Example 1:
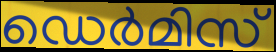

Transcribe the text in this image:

ഡെർമിസ്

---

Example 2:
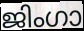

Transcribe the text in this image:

ജിംഗാ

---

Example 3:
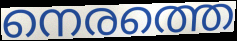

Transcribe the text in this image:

നെരത്തെ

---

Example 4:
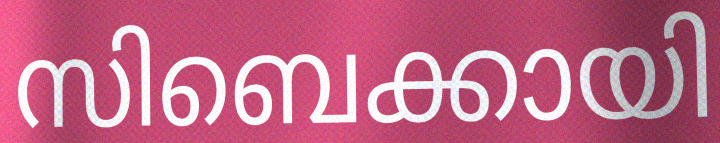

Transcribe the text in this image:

സിബെക്കായി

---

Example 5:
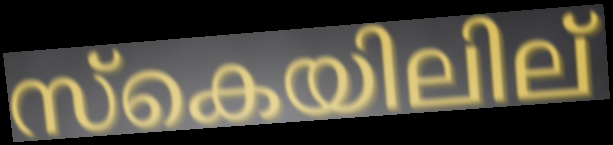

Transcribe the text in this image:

സ്കെയിലില്